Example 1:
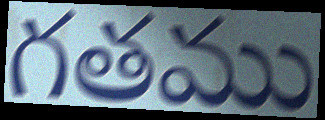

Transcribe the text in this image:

గతము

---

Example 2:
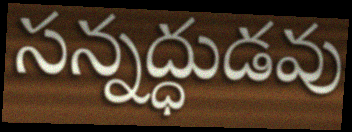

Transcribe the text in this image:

సన్నద్ధుడవు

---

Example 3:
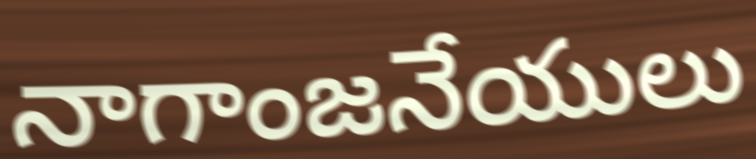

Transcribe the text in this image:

నాగాంజనేయులు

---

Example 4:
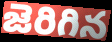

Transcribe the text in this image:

జెరిగిన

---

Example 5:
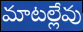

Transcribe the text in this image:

మాటల్లేవు